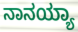
ನಾನಯ್ಯಾ